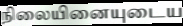
நிலையினையுடைய